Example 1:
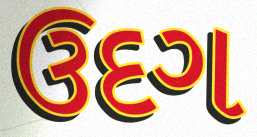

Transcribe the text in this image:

ઉદગ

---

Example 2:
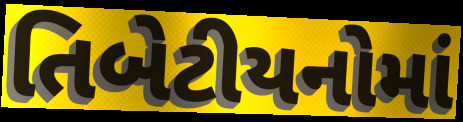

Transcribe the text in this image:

તિબેટીયનોમાં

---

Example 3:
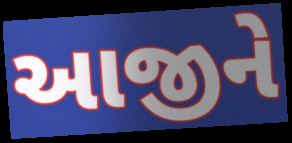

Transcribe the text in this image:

આજીને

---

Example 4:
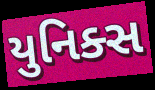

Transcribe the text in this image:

યુનિક્સ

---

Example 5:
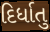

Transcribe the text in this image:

દિર્ધાતુ